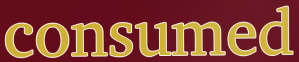
consumed